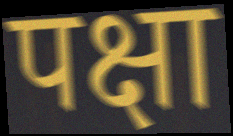
पक्षा